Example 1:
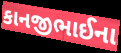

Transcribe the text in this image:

કાનજીભાઈના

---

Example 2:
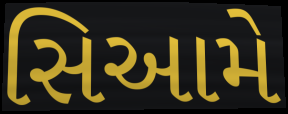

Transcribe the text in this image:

સિઆમે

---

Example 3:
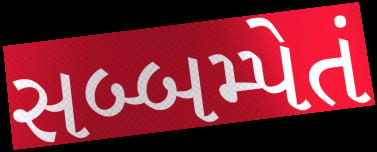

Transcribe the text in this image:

સબ્બમ્પેતં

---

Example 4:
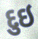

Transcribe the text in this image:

દુઇ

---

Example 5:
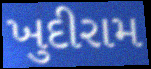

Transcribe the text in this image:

ખુદીરામ